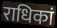
राधिकां